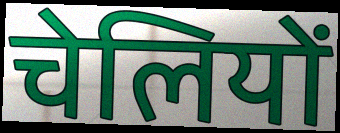
चेलियों